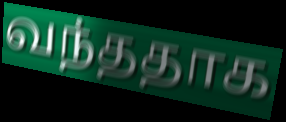
வந்ததாக